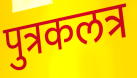
पुत्रकलत्र